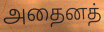
அதைனத்